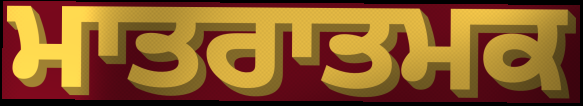
ਮਾਤਰਾਤਮਕ